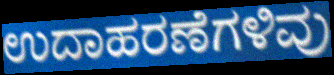
ಉದಾಹರಣೆಗಳಿವು